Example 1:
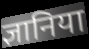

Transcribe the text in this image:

ज्ञानिया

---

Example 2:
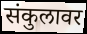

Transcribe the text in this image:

संकुलावर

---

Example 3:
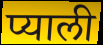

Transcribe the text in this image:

प्याली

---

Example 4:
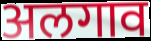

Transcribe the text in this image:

अलगाव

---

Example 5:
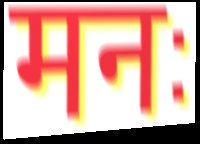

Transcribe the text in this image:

मनः